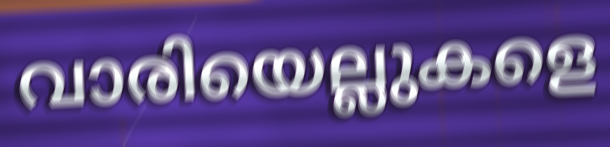
വാരിയെല്ലുകളെ